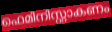
ഫെമിനിസ്റ്റാകണം